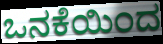
ಒನಕೆಯಿಂದ